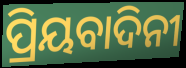
ପ୍ରିୟବାଦିନୀ